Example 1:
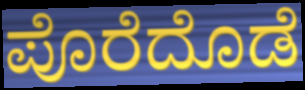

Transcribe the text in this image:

ಪೊರೆದೊಡೆ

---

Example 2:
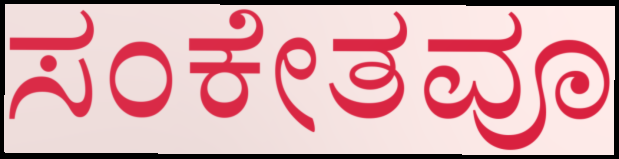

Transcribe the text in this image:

ಸಂಕೇತವೂ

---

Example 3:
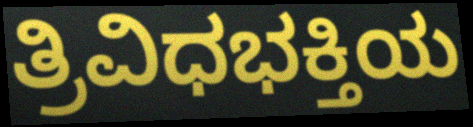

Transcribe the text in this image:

ತ್ರಿವಿಧಭಕ್ತಿಯ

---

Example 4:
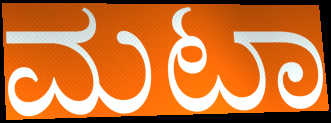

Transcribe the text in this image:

ಮಟಾ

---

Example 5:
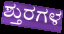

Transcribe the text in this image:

ಶ್ತುರಗಳ